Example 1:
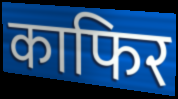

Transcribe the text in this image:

काफिर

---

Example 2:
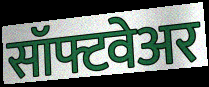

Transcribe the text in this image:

सॉफ्टवेअर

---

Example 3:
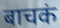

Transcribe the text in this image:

बाचकं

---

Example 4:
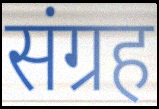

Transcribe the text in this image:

संग्रह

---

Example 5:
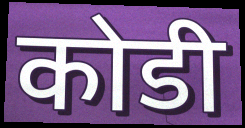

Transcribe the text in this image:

कोडी